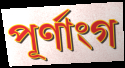
পূৰ্ণাংগ